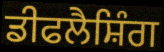
ਡੀਫਲੈਸ਼ਿੰਗ